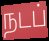
நடப்